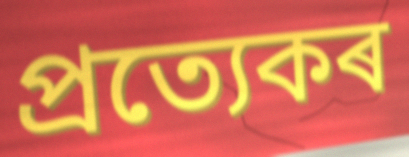
প্ৰত্যেকৰ